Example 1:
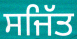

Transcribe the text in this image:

ਸਜਿੱਤ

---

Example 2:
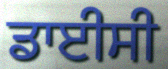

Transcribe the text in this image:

ਡਾਈਸੀ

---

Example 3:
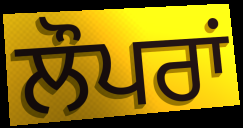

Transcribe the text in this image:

ਲੌਪਰਾਂ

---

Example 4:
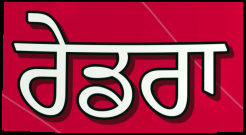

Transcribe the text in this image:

ਰੇਡਰਾ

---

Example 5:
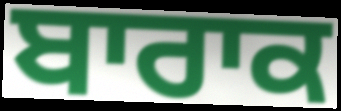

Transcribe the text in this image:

ਬਾਰਾਕ